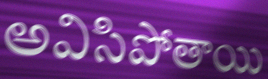
అవిసిపోతాయి